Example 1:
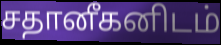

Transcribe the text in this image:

சதானீகனிடம்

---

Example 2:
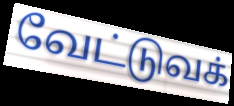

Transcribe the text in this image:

வேட்டுவக்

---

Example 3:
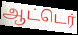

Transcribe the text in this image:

ஆட்டெர்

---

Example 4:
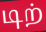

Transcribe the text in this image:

டிற்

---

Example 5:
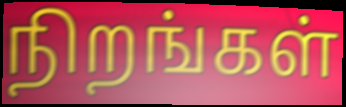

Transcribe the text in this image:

நிறங்கள்